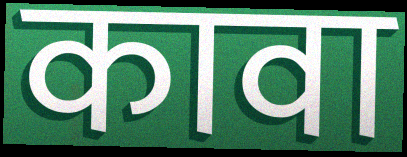
कावा